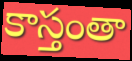
కాస్తంతా